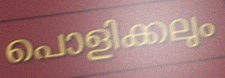
പൊളിക്കലും